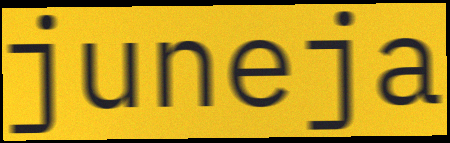
juneja